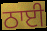
ਠਾਈ